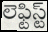
లెఫ్టిస్ట్